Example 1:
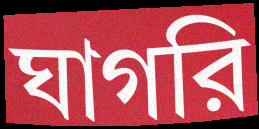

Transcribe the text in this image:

ঘাগরি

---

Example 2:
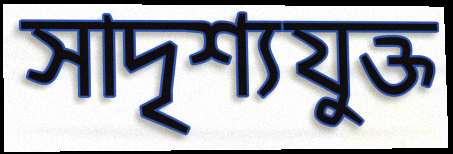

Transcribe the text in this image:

সাদৃশ্যযুক্ত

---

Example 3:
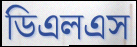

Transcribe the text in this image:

ডিএলএস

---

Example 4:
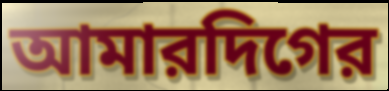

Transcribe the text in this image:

আমারদিগের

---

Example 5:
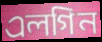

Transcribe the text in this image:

এলগিন